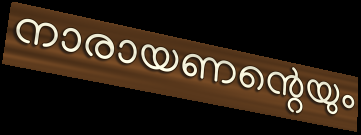
നാരായണന്റെയും